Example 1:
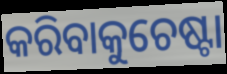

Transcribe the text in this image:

କରିବାକୁଚେଷ୍ଟା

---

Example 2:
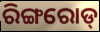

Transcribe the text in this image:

ରିଙ୍ଗରୋଡ୍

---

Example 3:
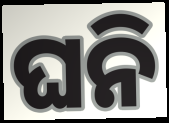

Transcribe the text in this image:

ଘନି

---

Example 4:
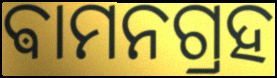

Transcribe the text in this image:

ଵାମନଗ୍ରହ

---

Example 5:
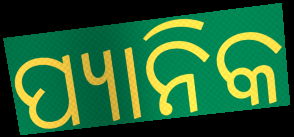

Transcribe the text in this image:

ପ୍ୟାନିକ